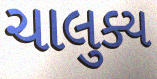
ચાલુક્ય